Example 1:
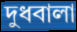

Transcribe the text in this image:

দুধবালা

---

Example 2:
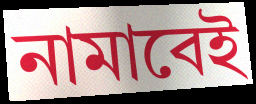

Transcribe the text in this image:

নামাবেই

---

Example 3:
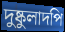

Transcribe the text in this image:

দুষ্কুলাদপি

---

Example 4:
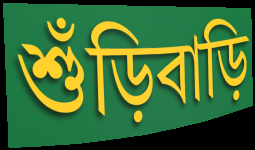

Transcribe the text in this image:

শুঁড়িবাড়ি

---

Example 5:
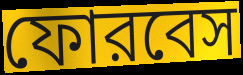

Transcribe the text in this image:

ফোরবেস